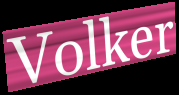
Volker